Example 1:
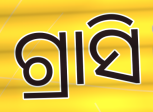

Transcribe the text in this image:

ଗ୍ରାସି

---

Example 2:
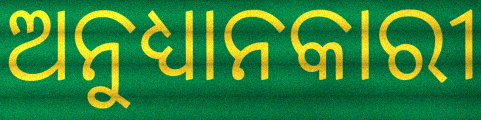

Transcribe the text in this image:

ଅନୁଧ୍ୟାନକାରୀ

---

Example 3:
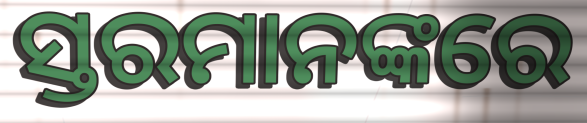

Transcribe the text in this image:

ସ୍ତରମାନଙ୍କରେ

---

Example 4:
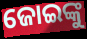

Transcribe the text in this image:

ଜୋଇଙ୍କୁ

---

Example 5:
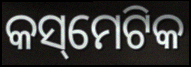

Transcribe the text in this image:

କସ୍‌ମେଟିକ